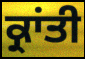
ਕ੍ਰਾਂਤੀ